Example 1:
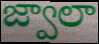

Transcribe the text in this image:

జ్వాలా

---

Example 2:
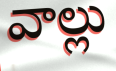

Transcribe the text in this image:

వాల్లు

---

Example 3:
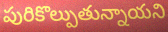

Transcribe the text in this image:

పురికొల్పుతున్నాయని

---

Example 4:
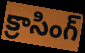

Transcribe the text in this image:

క్రాసింగ్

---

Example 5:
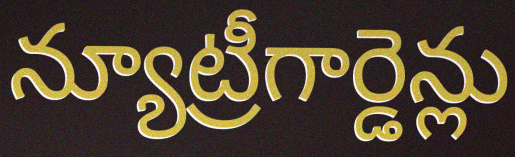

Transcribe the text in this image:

న్యూట్రీగార్డెన్లు